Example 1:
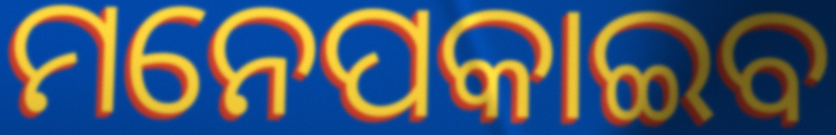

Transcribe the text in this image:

ମନେପକାଇବ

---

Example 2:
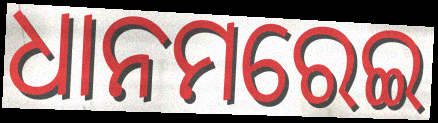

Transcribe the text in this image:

ଧାନମରେଇ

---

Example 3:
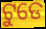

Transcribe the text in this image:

ଟୁଡେ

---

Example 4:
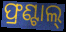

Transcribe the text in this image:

ଫ୍ରଣ୍ଟାଲ୍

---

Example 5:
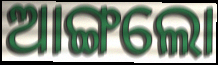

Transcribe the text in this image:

ଆଙ୍ଗଲୋ